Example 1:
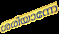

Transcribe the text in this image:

ശരിയാന്നേ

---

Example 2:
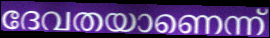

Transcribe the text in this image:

ദേവതയാണെന്ന്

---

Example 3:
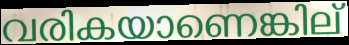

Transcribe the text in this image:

വരികയാണെങ്കില്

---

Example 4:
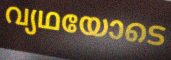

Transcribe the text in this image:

വ്യഥയോടെ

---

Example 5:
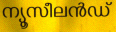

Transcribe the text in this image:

ന്യൂസീലൻഡ്